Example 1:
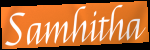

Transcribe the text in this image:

Samhitha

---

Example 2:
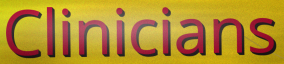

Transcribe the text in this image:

Clinicians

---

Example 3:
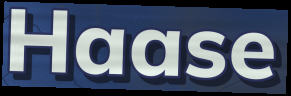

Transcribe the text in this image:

Haase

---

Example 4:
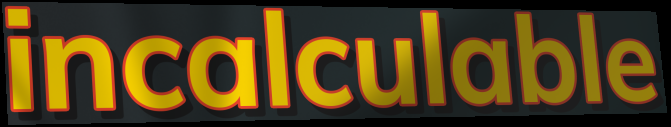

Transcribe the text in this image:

incalculable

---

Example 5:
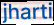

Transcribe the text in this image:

jharti